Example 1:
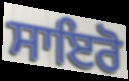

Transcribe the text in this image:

ਸਾਇਰੋ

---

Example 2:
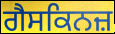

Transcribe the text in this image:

ਗੈਸਕਿਨਜ਼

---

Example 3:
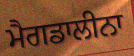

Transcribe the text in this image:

ਮੈਗਡਾਲੀਨਾ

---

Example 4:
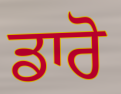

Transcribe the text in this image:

ਡਾਰੋ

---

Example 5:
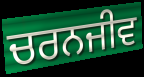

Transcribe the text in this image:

ਚਰਨਜੀਵ